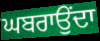
ਘਬਰਾਉਂਦਾ